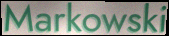
Markowski